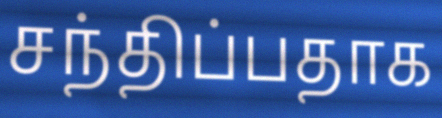
சந்திப்பதாக